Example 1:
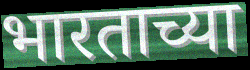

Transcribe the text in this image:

भारताच्या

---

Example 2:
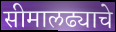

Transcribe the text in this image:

सीमालढ्याचे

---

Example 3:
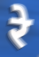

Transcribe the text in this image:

रे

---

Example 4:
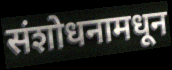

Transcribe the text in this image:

संशोधनामधून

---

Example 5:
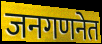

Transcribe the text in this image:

जनगणनेत